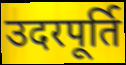
उदरपूर्ति